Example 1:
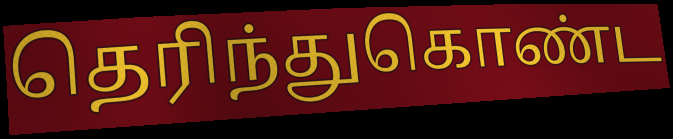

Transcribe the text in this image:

தெரிந்துகொண்ட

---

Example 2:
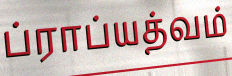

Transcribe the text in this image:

ப்ராப்யத்வம்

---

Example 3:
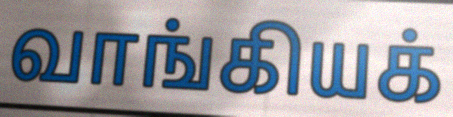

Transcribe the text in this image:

வாங்கியக்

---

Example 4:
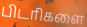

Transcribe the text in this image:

பிடரிகளை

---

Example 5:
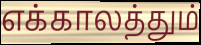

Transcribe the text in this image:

எக்காலத்தும்